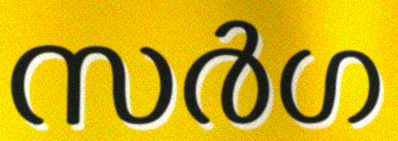
സർഗ